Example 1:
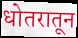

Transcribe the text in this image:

धोतरातून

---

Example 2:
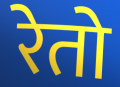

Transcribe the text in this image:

रेतो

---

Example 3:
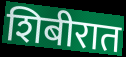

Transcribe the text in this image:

शिबीरात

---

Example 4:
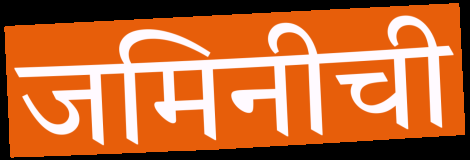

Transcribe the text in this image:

जमिनीची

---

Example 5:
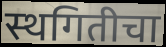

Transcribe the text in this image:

स्थगितीचा